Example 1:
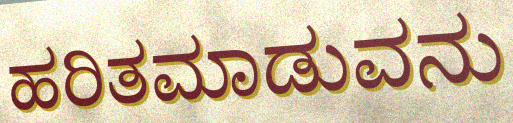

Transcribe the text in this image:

ಹರಿತಮಾಡುವನು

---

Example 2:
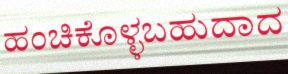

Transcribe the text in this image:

ಹಂಚಿಕೊಳ್ಳಬಹುದಾದ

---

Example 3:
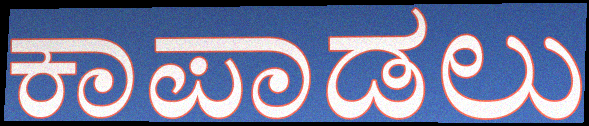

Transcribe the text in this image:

ಕಾಪಾಡಲು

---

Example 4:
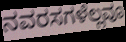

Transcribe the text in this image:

ನವರಸಗಳೆಲ್ಲವೂ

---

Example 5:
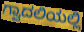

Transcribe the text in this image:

ಗ್ವಾದಲಿಯಲ್ಲಿ